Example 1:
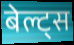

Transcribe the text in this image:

बेल्ट्स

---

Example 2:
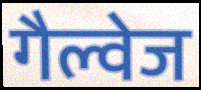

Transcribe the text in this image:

गैल्वेज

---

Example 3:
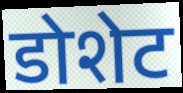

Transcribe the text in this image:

डोशेट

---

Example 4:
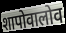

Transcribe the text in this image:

शापोवालोव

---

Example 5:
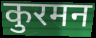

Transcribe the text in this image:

कुरमन